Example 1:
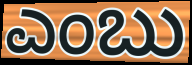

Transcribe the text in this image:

ಎಂಬು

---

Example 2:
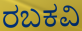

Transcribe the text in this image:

ರಬಕವಿ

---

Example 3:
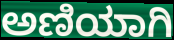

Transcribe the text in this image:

ಅಣಿಯಾಗಿ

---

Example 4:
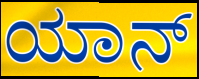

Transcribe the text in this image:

ಯಾನ್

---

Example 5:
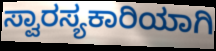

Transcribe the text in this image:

ಸ್ವಾರಸ್ಯಕಾರಿಯಾಗಿ